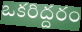
ఒకరిద్దరం